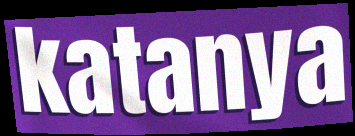
katanya